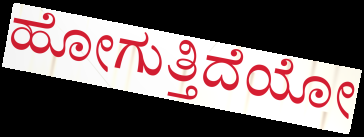
ಹೋಗುತ್ತಿದೆಯೋ